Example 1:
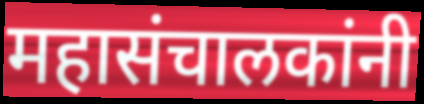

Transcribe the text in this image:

महासंचालकांनी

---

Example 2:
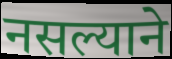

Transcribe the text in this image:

नसल्‍याने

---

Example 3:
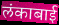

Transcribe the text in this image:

लंकाबाई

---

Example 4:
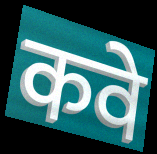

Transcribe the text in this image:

कवे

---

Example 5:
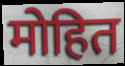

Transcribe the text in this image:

मोहित